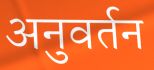
अनुवर्तन